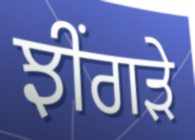
ਝੀਂਗੜੇ